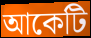
আকেটি